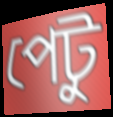
পেটু